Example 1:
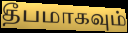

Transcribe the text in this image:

தீபமாகவும்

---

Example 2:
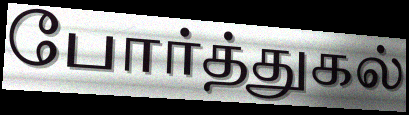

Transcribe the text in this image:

போர்த்துகல்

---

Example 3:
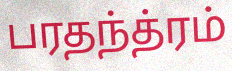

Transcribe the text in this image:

பரதந்த்ரம்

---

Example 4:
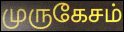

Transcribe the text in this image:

முருகேசம்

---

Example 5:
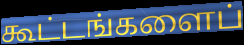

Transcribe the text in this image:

கூட்டங்களைப்